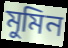
মুমিন